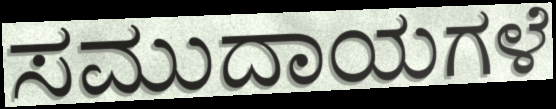
ಸಮುದಾಯಗಳೆ